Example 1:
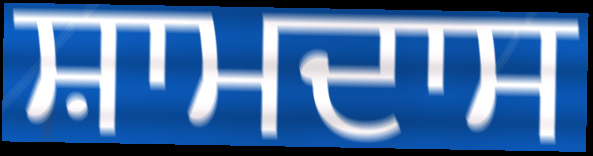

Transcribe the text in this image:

ਸ਼ਾਮਦਾਸ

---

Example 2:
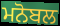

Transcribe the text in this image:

ਮਨੋਬਲ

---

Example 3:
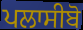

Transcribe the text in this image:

ਪਲਾਸੀਬੋ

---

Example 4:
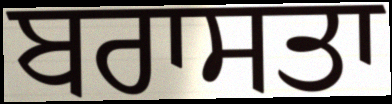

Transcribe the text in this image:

ਬਰਾਸਤਾ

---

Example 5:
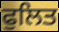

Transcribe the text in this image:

ਫੁਲਿਤ